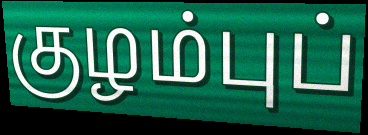
குழம்புப்